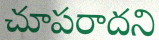
చూపరాదని